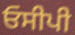
ਓਸੀਪੀ